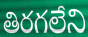
తిరగలేని